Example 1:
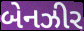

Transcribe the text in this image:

બેનઝીર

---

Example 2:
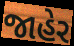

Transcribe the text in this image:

જાહેર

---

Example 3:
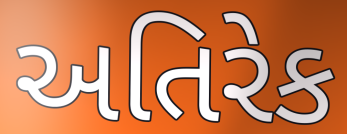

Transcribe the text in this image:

અતિરેક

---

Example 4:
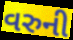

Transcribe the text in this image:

વરુની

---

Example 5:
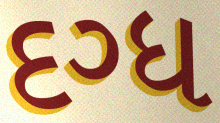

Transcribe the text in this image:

દગ્ધ